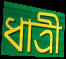
ধাত্ৰী